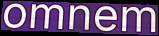
omnem